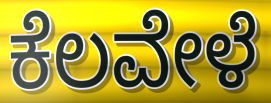
ಕೆಲವೇಳೆ